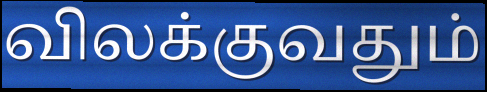
விலக்குவதும்